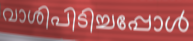
വാശിപിടിച്ചപ്പോൾ